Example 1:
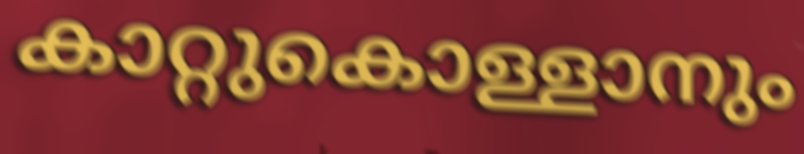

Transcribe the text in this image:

കാറ്റുകൊള്ളാനും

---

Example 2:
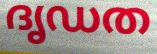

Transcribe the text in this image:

ദൃഡത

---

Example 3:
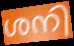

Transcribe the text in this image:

ശനി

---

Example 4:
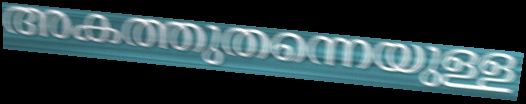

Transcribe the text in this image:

അകത്തുതന്നെയുള്ള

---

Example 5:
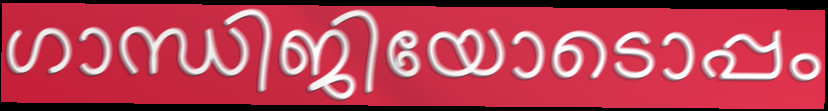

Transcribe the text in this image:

ഗാന്ധിജിയോടൊപ്പം